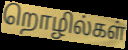
றொழில்கள்